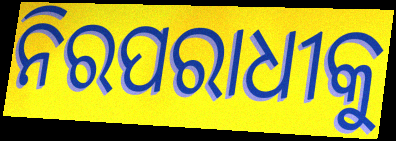
ନିରପରାଧୀକୁ